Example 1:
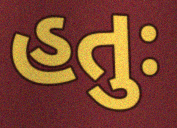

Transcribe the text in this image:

હતુઃ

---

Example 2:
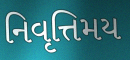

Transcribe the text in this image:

નિવૃત્તિમય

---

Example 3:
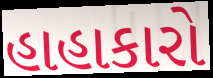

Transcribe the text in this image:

હાહાકારો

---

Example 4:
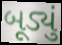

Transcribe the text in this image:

બૂડ્યું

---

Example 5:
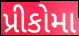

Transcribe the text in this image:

પ્રીકોમા